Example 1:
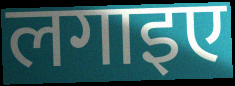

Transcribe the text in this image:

लगाइए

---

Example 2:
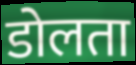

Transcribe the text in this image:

डोलता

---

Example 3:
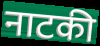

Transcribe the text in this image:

नाटकी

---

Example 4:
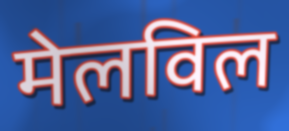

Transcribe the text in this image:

मेलविल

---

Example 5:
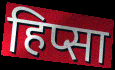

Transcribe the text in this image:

हिप्सा